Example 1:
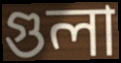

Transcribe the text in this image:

গুলা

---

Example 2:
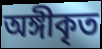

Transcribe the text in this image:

অঙ্গীকৃত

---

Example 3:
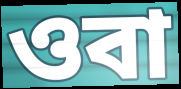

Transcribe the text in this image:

ওবা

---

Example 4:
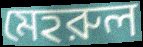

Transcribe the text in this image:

মেহরুল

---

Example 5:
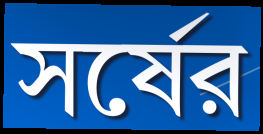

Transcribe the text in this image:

সর্ষের